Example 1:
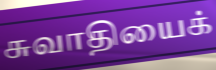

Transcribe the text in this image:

சுவாதியைக்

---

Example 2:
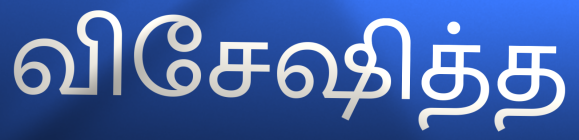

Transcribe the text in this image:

விசேஷித்த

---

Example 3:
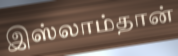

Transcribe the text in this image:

இஸ்லாம்தான்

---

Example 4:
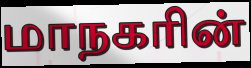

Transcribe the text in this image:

மாநகரின்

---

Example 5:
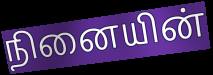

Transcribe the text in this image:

நினையின்